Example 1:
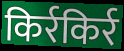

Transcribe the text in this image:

किर्रकिर्र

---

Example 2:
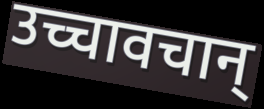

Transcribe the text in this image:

उच्चावचान्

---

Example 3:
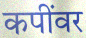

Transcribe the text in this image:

कपींवर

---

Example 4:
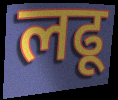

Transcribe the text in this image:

लढू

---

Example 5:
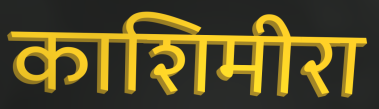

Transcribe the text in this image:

काशिमीरा